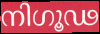
നിഗൂഢ